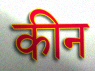
कीन